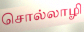
சொல்லாழி